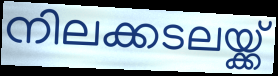
നിലക്കടലയ്ക്ക്